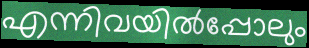
എന്നിവയിൽപ്പോലും